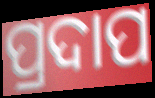
ପ୍ରଦାପ